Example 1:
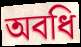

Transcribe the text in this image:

অবধি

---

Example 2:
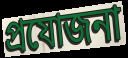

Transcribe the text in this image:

প্ৰযোজনা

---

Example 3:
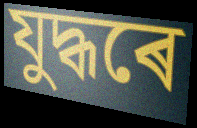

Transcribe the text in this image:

যুদ্ধৰে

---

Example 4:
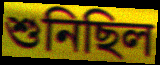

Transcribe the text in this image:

শুনিছিল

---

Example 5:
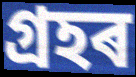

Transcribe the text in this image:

গ্ৰহৰ